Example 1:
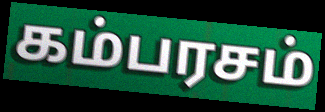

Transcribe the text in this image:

கம்பரசம்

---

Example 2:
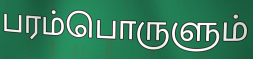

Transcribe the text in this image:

பரம்பொருளும்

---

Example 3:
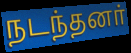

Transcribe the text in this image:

நடந்தனர்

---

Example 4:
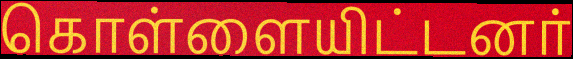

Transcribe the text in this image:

கொள்ளையிட்டனர்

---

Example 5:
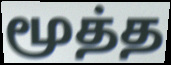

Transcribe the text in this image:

மூத்த